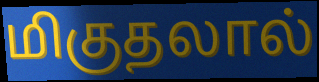
மிகுதலால்